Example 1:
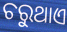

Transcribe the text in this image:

ଚରୁଥାଏ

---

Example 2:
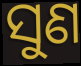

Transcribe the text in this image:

ସୁଣ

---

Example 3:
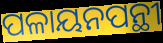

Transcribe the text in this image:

ପଳାୟନପନ୍ଥୀ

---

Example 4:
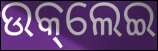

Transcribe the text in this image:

ଉକ୍‌ଲେଇ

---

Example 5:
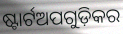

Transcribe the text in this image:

ଷ୍ଟାର୍ଟଅପଗୁଡ଼ିକର